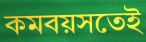
কমবয়সতেই